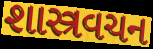
શાસ્ત્રવચન